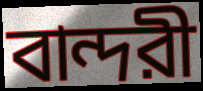
বান্দরী